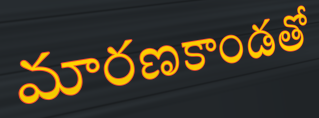
మారణకాండతో